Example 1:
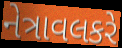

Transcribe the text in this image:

નેત્રાવલકરે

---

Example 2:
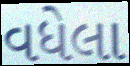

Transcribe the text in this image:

વધેલા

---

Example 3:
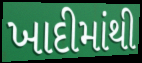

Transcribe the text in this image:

ખાદીમાંથી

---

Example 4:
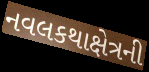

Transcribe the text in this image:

નવલકથાક્ષેત્રની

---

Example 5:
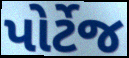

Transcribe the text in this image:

પોર્ટેજ